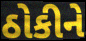
ઠોકીને